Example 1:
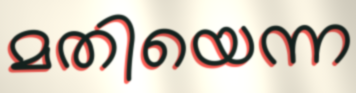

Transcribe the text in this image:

മതിയെന്ന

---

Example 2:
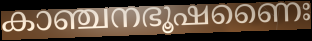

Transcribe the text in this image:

കാഞ്ചനഭൂഷണൈഃ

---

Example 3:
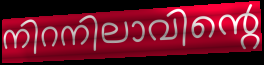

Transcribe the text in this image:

നിറനിലാവിന്റെ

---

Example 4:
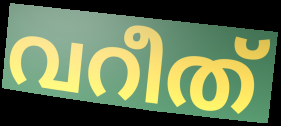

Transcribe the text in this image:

വറീത്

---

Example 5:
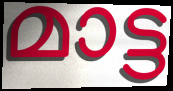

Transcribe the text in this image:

മാട്ട